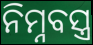
ନିମ୍ନବସ୍ତ୍ର